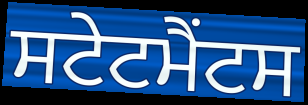
ਸਟੇਟਮੈਂਟਸ